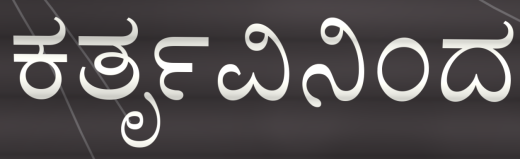
ಕರ್ತೃವಿನಿಂದ